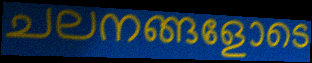
ചലനങ്ങളോടെ